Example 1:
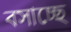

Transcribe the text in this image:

বসাচ্ছে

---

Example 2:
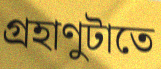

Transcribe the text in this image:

গ্রহাণুটাতে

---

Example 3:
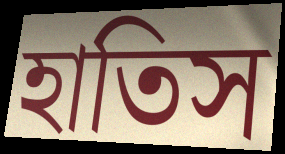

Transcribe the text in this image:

হাতিস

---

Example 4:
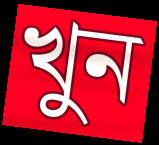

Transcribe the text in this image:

খুন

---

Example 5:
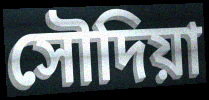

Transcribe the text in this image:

সৌদিয়া